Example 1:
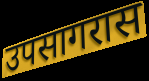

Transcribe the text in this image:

उपसागरास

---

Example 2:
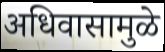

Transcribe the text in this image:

अधिवासामुळे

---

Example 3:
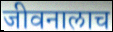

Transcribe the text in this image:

जीवनालाच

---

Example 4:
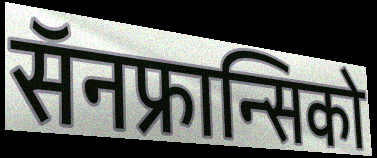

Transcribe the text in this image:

सॅनफ्रान्सिको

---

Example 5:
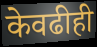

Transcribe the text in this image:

केवढीही